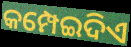
କମ୍ପେଇଦିଏ